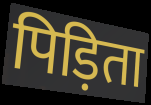
पिड़िता